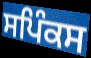
ਸਪਿੰਕਸ